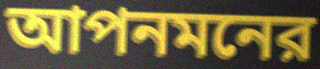
আপনমনের